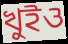
খুইও